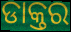
ଡାକ୍ତର